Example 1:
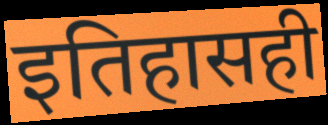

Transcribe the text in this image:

इतिहासही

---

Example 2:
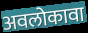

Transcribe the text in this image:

अवलोकावा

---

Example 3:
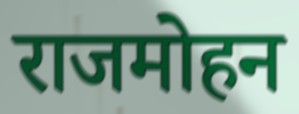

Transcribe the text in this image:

राजमोहन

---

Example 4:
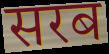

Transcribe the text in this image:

सरब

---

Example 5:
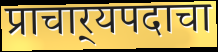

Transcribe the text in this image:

प्राचार्यपदाचा